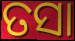
ତସା